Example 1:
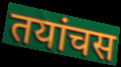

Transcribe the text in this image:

तयांचस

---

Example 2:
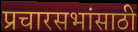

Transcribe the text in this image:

प्रचारसभांसाठी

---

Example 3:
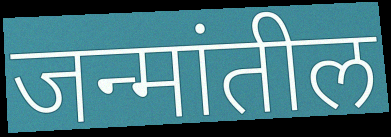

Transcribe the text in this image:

जन्मांतील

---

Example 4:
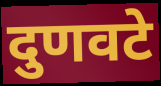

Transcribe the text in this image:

दुणवटे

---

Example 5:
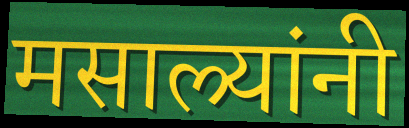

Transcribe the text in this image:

मसाल्यांनी